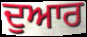
ਦੁਆਰ